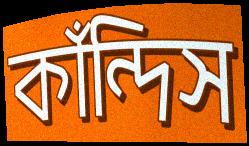
কাঁন্দিস